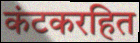
कंटकरहित